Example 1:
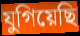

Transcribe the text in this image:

যুগিয়েছি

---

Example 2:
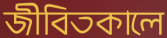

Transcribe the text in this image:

জীবিতকালে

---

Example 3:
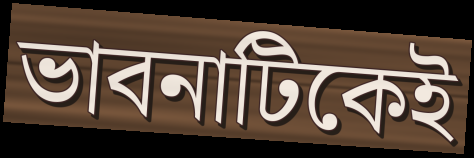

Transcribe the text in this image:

ভাবনাটিকেই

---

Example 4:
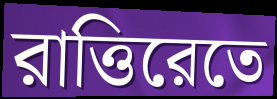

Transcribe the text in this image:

রাত্তিরেতে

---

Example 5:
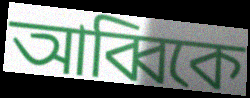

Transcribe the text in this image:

আব্বিকে